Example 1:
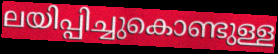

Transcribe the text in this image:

ലയിപ്പിച്ചുകൊണ്ടുള്ള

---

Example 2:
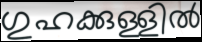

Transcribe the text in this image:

ഗുഹക്കുള്ളിൽ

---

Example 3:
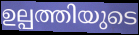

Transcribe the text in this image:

ഉല്പത്തിയുടെ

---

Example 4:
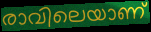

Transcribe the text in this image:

രാവിലെയാണ്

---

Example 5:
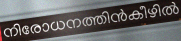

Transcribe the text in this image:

നിരോധനത്തിൻകീഴിൽ